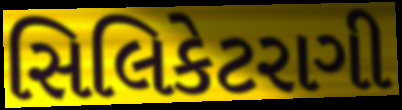
સિલિકેટરાગી